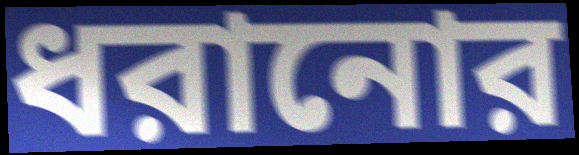
ধরানোর